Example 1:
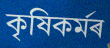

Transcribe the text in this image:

কৃষিকৰ্মৰ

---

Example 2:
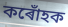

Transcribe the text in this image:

কৰোঁহক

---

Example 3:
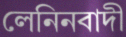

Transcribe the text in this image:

লেনিনবাদী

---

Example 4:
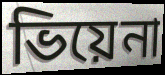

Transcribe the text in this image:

ভিয়েনা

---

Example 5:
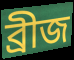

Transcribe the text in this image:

ব্ৰীজ